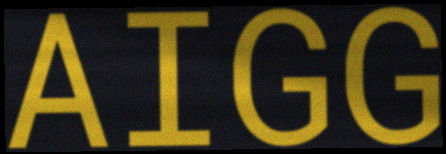
AIGG